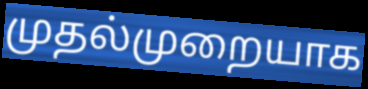
முதல்முறையாக